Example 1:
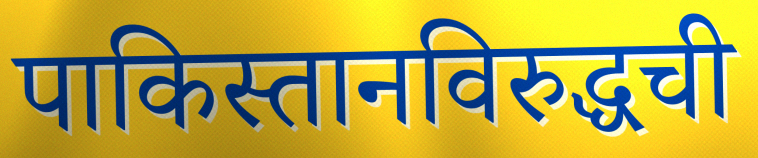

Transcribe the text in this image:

पाकिस्तानविरुद्धची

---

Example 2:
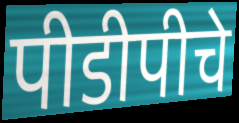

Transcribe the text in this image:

पीडीपीचे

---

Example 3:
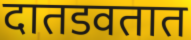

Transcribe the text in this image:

दातडवतात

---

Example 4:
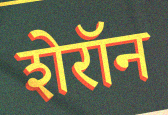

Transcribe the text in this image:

शेरॉन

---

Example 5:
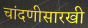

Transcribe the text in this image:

चांदणीसारखी